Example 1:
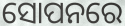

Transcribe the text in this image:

ସୋପନରେ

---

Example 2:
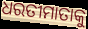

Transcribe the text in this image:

ଧରତୀମାତାକୁ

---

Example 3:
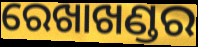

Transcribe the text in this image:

ରେଖାଖଣ୍ଡର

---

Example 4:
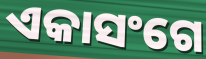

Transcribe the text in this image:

ଏକାସଂଗେ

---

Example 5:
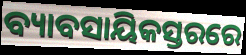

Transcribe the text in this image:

ବ୍ୟାବସାୟିକସ୍ତରରେ